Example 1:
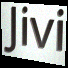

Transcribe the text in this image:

Jivi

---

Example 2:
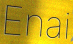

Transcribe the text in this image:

Enai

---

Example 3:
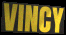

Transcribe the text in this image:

VINCY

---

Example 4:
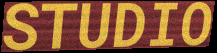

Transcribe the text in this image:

STUDIO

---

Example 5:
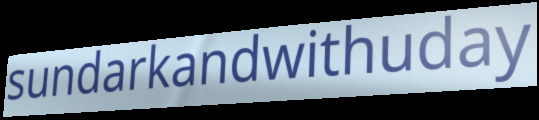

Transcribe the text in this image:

sundarkandwithuday